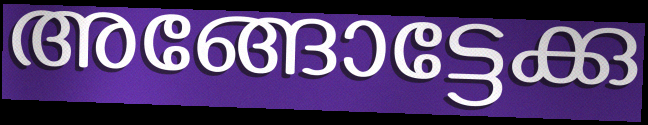
അങ്ങോട്ടേക്കു